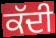
ਕੱਦੀ